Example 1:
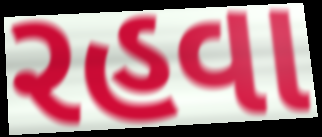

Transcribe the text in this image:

રહવા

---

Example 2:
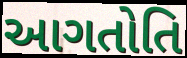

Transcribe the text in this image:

આગતોતિ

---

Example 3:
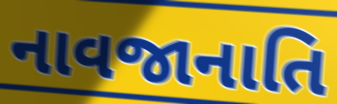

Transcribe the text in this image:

નાવજાનાતિ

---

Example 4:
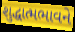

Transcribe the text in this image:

શુદ્ધાત્મભાવને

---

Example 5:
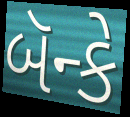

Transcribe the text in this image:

બૅન્કે